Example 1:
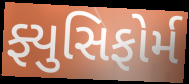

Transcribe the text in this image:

ફ્યુસિફોર્મ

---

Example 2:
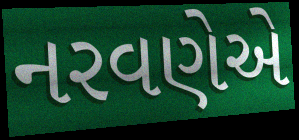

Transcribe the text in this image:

નરવણેએ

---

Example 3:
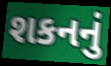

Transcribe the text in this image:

શકનનું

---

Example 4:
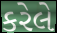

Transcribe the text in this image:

કરેલે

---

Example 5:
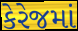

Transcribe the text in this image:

કેરેજમાં